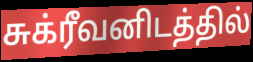
சுக்ரீவனிடத்தில்